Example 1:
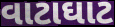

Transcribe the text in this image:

વાટાઘાટ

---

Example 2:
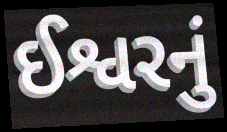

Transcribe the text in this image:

ઈશ્વરનું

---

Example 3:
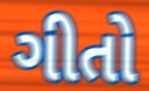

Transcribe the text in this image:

ગીતો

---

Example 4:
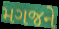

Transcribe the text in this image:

મગજને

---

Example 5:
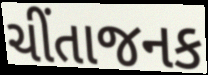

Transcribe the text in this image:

ચીંતાજનક